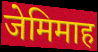
जेमिमाह